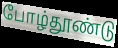
போழ்தூண்டு